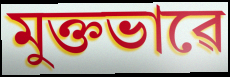
মুক্তভাৱে